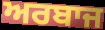
ਅਰਬਾਜ